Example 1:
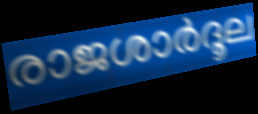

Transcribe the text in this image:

രാജശാർദൂല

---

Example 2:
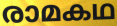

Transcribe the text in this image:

രാമകഥ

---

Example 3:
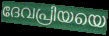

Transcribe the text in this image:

ദേവപ്രിയയെ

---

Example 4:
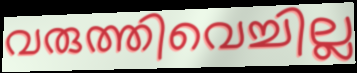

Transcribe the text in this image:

വരുത്തിവെച്ചില്ല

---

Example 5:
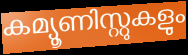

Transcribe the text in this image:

കമ്യൂണിസ്റ്റുകളും